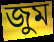
জুম